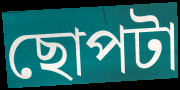
ছোপটা